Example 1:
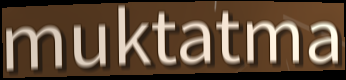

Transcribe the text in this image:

muktatma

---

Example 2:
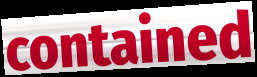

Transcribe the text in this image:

contained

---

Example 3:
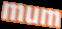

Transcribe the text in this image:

mum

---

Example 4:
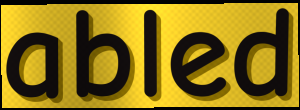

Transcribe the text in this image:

abled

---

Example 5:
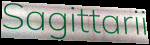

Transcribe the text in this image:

Sagittarii